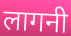
लागनी